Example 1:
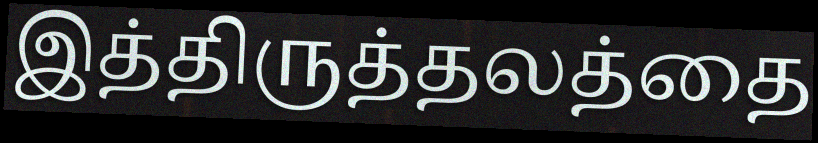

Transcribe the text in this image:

இத்திருத்தலத்தை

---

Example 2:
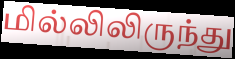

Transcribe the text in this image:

மில்லிலிருந்து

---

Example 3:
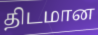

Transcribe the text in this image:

திடமான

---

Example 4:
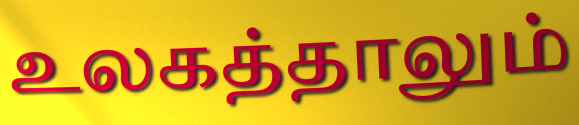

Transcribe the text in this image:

உலகத்தாலும்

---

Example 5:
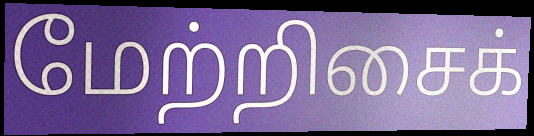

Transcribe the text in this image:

மேற்றிசைக்